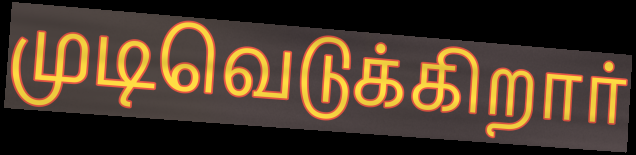
முடிவெடுக்கிறார்